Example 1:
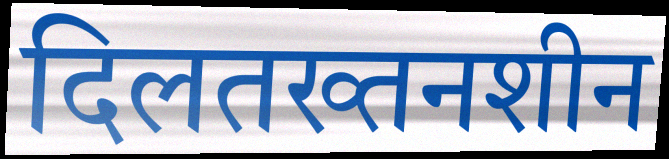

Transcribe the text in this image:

दिलतख्तनशीन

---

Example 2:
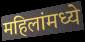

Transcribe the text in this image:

महिलांमध्ये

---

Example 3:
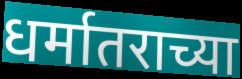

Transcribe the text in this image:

धर्मातराच्या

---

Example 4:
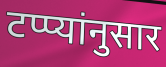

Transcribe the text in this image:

टप्प्यांनुसार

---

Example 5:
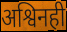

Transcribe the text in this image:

अश्विनही